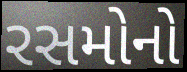
રસમોનો